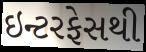
ઇન્ટરફેસથી